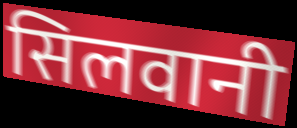
सिलवानी